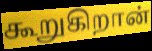
கூறுகிறான்